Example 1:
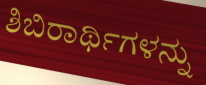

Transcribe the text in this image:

ಶಿಬಿರಾರ್ಥಿಗಳನ್ನು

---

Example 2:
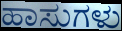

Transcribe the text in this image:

ಹಾಸುಗಳು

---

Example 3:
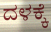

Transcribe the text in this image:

ದಳಕ್ಕೆ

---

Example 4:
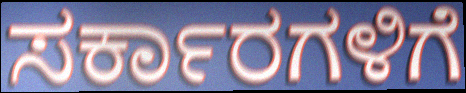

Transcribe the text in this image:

ಸರ್ಕಾರಗಳಿಗೆ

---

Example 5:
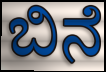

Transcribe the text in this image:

ಬಿನೆ